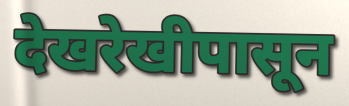
देखरेखीपासून